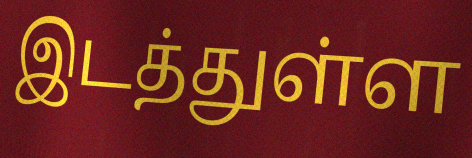
இடத்துள்ள